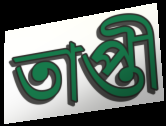
তাপ্তী